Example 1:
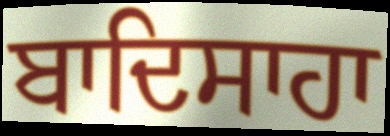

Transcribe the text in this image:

ਬਾਦਿਸਾਹਾ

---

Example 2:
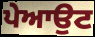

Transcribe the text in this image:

ਪੇਆਉਟ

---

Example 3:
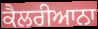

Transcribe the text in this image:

ਕੈਲਰੀਆਨਾ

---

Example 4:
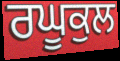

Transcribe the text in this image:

ਰਘੂਕੁਲ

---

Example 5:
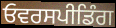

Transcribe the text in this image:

ਓਵਰਸਪੀਡਿੰਗ